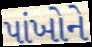
પાંખોને